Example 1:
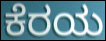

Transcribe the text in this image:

ಕೆರಯ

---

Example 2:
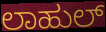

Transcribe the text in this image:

ಲಾಹುಲ್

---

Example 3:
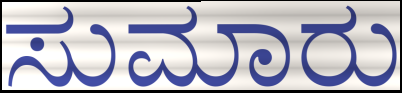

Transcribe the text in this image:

ಸುಮಾರು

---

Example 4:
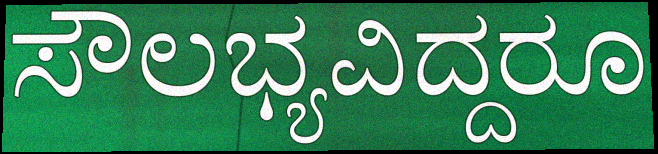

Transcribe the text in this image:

ಸೌಲಭ್ಯವಿದ್ದರೂ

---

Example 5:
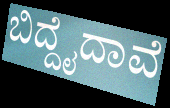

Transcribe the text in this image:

ಬಿದ್ದೈದಾವೆ